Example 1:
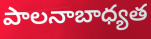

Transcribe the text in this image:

పాలనాబాధ్యత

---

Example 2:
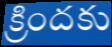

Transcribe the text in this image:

క్రిందకు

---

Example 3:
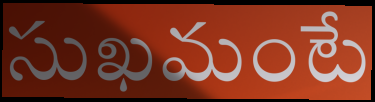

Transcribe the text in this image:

సుఖమంటే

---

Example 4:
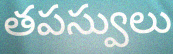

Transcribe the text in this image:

తపస్వులు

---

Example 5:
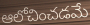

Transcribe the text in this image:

ఆలోచించడమే